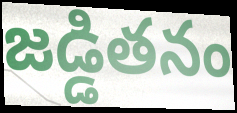
జడ్డితనం